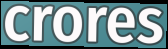
crores